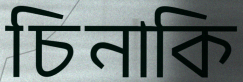
চিনাকি